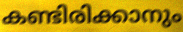
കണ്ടിരിക്കാനും